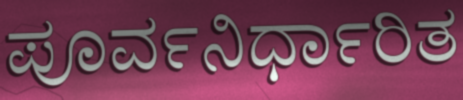
ಪೂರ್ವನಿರ್ಧಾರಿತ